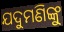
ଯଦୁମଣିଙ୍କୁ